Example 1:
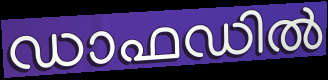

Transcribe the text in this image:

ഡാഫഡിൽ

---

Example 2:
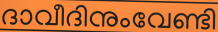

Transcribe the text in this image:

ദാവീദിനുംവേണ്ടി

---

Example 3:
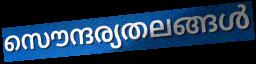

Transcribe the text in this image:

സൌന്ദര്യതലങ്ങൾ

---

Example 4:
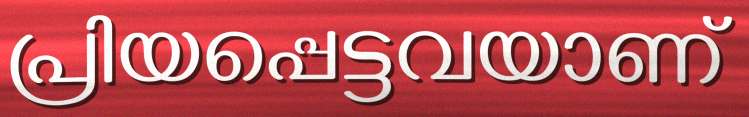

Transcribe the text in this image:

പ്രിയപ്പെട്ടവയാണ്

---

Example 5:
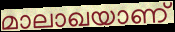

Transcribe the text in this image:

മാലാഖയാണ്